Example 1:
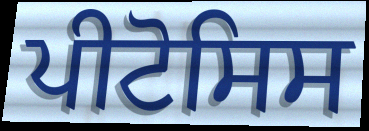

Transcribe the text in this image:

ਪੀਟੋਸਿਸ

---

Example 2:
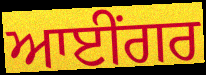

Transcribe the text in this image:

ਆਈਂਗਰ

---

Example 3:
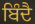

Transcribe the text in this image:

ਬਿੰਦੈ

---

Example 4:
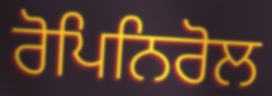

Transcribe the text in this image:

ਰੋਪਿਨਿਰੋਲ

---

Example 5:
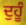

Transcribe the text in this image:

ਦੁਹੂੰ